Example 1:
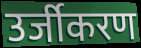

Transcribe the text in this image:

उर्जीकरण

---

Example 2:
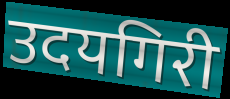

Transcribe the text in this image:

उदयगिरी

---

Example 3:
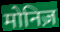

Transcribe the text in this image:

मोनिज़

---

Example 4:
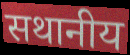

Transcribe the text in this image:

सथानीय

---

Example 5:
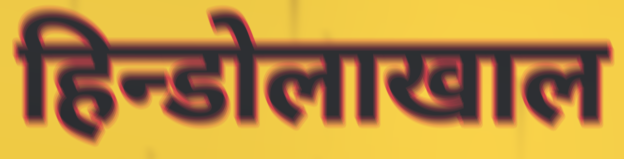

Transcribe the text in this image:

हिन्डोलाखाल